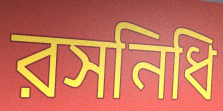
রসনিধি